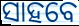
ସାହବେ